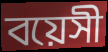
বয়েসী